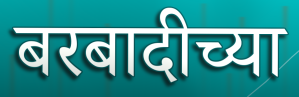
बरबादीच्या